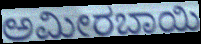
ಅಮೀರಬಾಯಿ